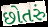
છોતરું